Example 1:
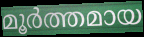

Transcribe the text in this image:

മൂർത്തമായ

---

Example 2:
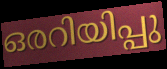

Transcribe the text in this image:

ഒരറിയിപ്പു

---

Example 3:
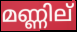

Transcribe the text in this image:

മണ്ണില്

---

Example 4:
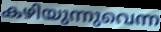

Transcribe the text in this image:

കഴിയുന്നുവെന്ന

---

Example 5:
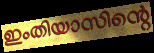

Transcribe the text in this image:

ഇംതിയാസിന്റെ